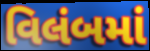
વિલંબમાં